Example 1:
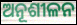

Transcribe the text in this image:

ଅନୂଶୀଳନ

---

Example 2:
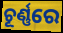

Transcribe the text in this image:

ଚୂର୍ଣ୍ଣରେ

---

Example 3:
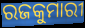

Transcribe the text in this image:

ରଜକୁମାରୀ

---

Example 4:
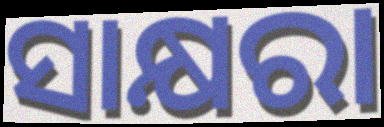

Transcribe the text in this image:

ସାକ୍ଷରା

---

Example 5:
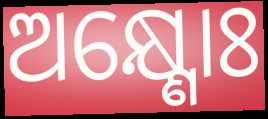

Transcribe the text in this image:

ଅକ୍ଷ୍ଣୋଃ